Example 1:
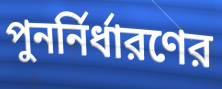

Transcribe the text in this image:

পুনর্নির্ধারণের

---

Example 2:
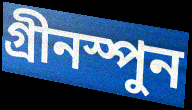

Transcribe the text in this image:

গ্রীনস্পুন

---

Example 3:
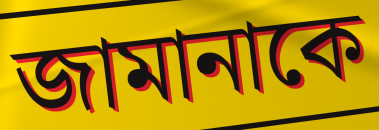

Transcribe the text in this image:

জামানাকে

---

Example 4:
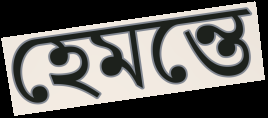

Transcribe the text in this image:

হেমন্তে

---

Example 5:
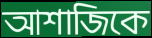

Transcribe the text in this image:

আশাজিকে